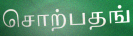
சொற்பதங்